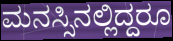
ಮನಸ್ಸಿನಲ್ಲಿದ್ದರೂ